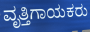
ವೃತ್ತಿಗಾಯಕರು